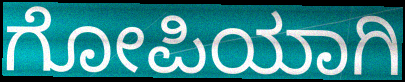
ಗೋಪಿಯಾಗಿ